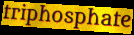
triphosphate